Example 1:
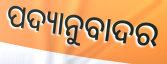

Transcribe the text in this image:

ପଦ୍ୟାନୁବାଦର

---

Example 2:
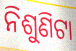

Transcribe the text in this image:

ନିଶୁଣିଟା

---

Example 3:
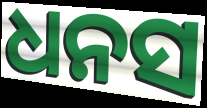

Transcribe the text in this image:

ଧନସ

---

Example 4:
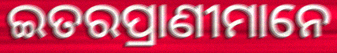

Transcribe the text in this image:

ଇତରପ୍ରାଣୀମାନେ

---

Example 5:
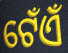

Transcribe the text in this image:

ଟେଁଏଁ